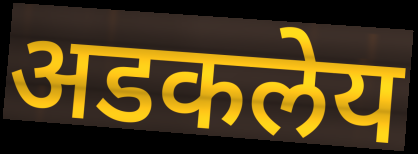
अडकलेय